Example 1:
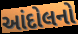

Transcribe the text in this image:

આંદોલનો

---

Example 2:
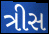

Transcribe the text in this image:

ત્રીસ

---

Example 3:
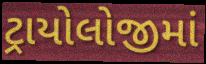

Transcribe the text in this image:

ટ્રાયોલોજીમાં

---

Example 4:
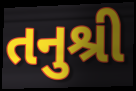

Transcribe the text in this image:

તનુશ્રી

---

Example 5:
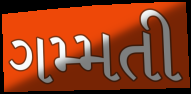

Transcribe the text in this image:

ગમ્મતી